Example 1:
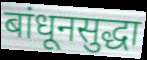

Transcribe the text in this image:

बांधूनसुद्धा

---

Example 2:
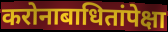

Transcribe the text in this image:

करोनाबाधितांपेक्षा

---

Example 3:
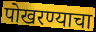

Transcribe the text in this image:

पोखरण्याचा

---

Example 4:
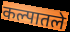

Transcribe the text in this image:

कल्पातले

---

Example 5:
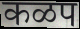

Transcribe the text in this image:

कळप